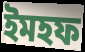
ইমহফ